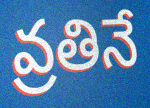
వ్రతినే